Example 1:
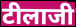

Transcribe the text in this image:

टीलाजी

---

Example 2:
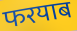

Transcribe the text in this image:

फरयाब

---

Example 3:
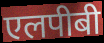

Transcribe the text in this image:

एलपीबी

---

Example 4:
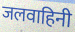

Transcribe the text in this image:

जलवाहिनी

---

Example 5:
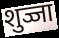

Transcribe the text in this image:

शुज्जा